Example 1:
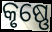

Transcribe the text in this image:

କୃଷ୍ଣେ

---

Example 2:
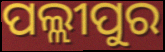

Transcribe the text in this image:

ପଲ୍ଲୀପୁର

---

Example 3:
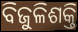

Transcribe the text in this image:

ବିଜୁଳିଶକ୍ତି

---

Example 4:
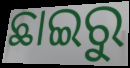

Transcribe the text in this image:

ଛାଇରୁ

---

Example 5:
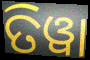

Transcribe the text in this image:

ତିୱା